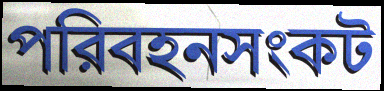
পরিবহনসংকট